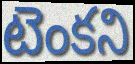
టెంకని